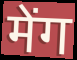
मेंग